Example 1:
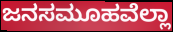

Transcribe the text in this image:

ಜನಸಮೂಹವೆಲ್ಲಾ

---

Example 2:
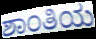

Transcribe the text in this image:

ಶಾಂತಿಯ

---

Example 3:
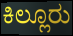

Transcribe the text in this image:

ಕಿಲ್ಲೂರು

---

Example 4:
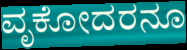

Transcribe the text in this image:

ವೃಕೋದರನೂ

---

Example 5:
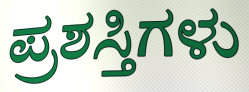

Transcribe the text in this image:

ಪ್ರಶಸ್ತಿಗಳು